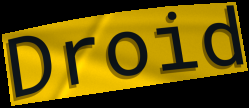
Droid